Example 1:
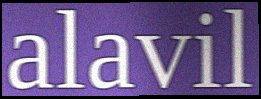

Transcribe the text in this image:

alavil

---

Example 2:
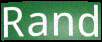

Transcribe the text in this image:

Rand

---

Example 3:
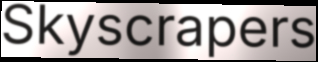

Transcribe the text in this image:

Skyscrapers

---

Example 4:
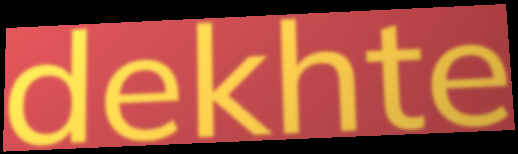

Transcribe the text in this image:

dekhte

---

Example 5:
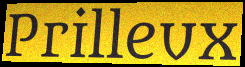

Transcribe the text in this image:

Prilleux